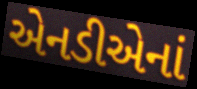
એનડીએનાં